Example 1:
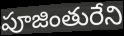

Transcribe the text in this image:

పూజింతురేని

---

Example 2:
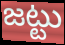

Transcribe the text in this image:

జట్టు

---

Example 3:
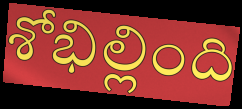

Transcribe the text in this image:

శోభిల్లింది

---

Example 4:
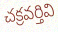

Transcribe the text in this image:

చక్రవర్తివి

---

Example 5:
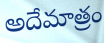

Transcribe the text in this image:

అదేమాత్రం